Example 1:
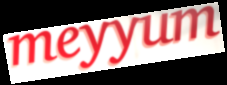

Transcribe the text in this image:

meyyum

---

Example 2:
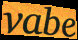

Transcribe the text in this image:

vabe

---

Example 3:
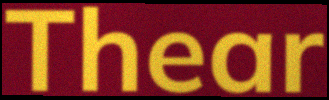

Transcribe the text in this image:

Thear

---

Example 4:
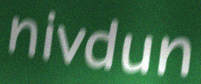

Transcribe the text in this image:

nivdun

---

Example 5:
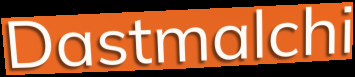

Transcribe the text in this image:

Dastmalchi